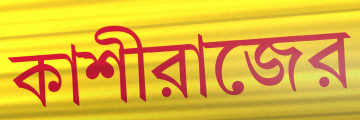
কাশীরাজের